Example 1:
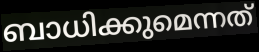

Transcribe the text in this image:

ബാധിക്കുമെന്നത്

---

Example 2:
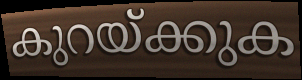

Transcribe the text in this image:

കുറയ്ക്കുക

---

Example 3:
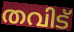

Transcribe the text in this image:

തവിട്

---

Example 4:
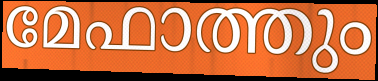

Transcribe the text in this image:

മേഫാത്തും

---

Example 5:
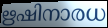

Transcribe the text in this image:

ഋഷിനാരധ